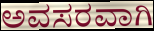
ಅವಸರವಾಗಿ